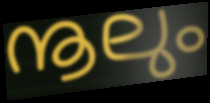
നൂലും